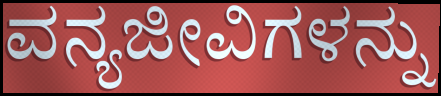
ವನ್ಯಜೀವಿಗಳನ್ನು